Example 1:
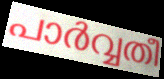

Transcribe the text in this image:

പാർവ്വതീ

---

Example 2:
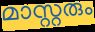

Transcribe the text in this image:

മാസ്റ്റരും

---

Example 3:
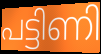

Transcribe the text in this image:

പട്ടിണി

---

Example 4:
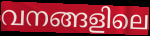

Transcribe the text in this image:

വനങ്ങളിലെ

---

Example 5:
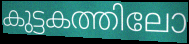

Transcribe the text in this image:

കുട്ടകത്തിലോ